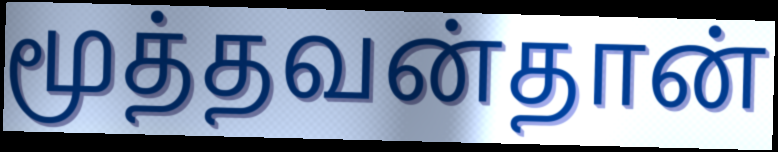
மூத்தவன்தான்